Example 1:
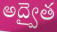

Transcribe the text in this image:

అద్వైత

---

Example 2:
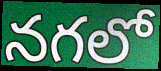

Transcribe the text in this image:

నగలో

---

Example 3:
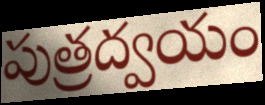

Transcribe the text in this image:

పుత్రద్వయం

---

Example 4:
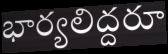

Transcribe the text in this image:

భార్యలిద్దరూ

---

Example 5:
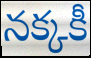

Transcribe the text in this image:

నక్కకీ